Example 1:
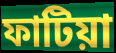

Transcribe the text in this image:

ফাটিয়া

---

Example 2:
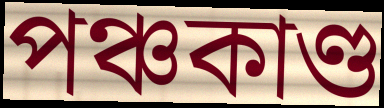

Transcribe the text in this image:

পঞ্চকাণ্ড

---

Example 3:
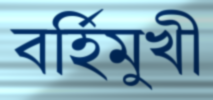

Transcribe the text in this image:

বর্হিমুখী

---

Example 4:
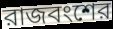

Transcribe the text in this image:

রাজবংশের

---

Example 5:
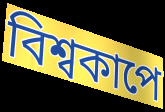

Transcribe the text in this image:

বিশ্বকাপে